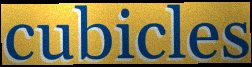
cubicles